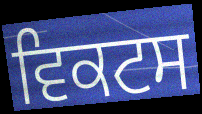
ਵਿਕਟਸ